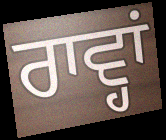
ਰਾਵ੍ਹਾਂ